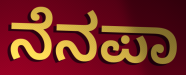
ನೆನಪಾ